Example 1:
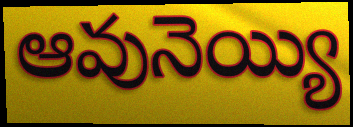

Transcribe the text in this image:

ఆవునెయ్యి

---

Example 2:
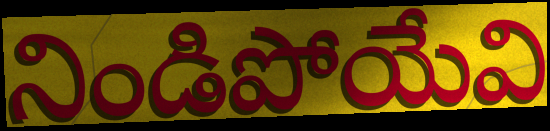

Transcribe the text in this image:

నిండిపోయేవి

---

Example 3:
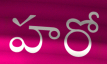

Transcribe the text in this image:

హరో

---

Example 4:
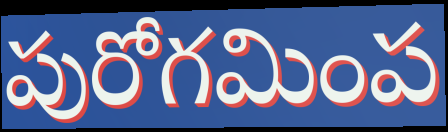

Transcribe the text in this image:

పురోగమింప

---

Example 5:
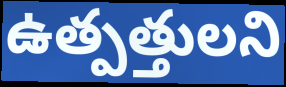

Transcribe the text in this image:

ఉత్పత్తులని